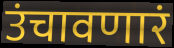
उंचावणारं